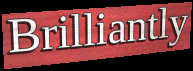
Brilliantly